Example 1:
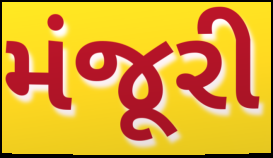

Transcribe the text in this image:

મંજૂરી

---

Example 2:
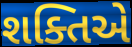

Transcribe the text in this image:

શક્તિએ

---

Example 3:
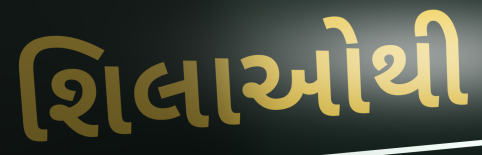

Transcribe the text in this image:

શિલાઓથી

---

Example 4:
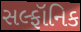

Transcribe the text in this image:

સલ્ફૉનિક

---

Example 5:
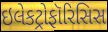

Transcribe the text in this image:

ઇલેકટ્રોફૉરિસિસ